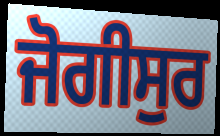
ਜੋਗੀਸੁਰ